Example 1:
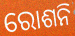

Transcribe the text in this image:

ରୋଶନି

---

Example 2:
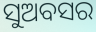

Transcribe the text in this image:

ସୁଅବସର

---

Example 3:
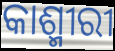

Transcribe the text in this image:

କାଶ୍ମୀରୀ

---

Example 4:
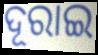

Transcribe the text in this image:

ଦୂରାଇ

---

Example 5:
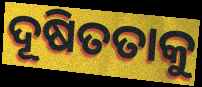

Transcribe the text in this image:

ଦୂଷିତତାକୁ